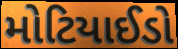
મોટિયાઈડો